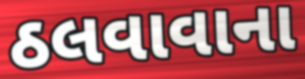
ઠલવાવાના